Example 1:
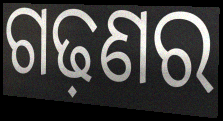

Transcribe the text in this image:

ଗଢ଼ଣର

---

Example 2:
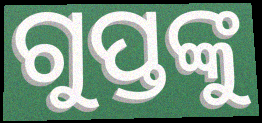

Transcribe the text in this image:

ଗୁପ୍ତଙ୍କୁ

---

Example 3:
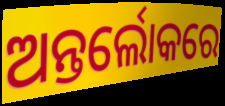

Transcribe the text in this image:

ଅନ୍ତର୍ଲୋକରେ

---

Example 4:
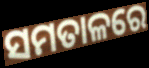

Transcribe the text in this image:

ସମତାଳରେ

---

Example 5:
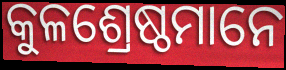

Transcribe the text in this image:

କୁଳଶ୍ରେଷ୍ଠମାନେ